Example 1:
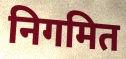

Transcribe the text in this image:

निगमित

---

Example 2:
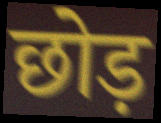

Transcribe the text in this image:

छोड़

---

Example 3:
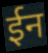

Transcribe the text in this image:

ईन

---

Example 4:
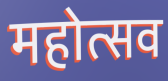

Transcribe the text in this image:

महोत्सव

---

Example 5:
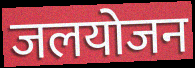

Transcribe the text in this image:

जलयोजन